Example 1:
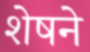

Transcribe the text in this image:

शेषने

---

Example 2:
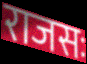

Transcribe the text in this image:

राजसः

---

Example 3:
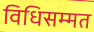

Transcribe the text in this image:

विधिसम्मत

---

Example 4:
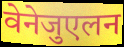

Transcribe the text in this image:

वेनेजुएलन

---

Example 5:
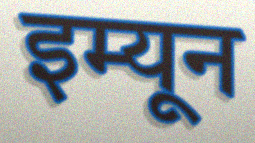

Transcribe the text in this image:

इम्‍यून